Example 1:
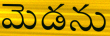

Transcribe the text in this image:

మెడను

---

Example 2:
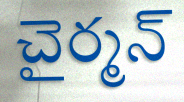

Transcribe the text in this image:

చైర్మన్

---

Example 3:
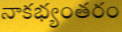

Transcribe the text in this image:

నాకభ్యంతరం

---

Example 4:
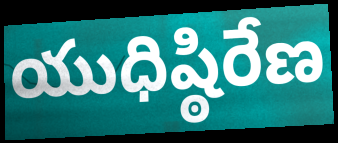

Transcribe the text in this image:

యుధిష్ఠిరేణ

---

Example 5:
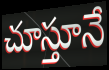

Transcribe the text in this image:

చూస్తూనే